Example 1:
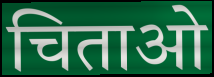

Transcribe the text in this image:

चिताओ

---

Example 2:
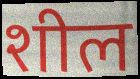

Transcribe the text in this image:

शील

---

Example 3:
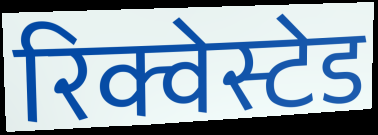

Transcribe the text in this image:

रिक्वेस्टेड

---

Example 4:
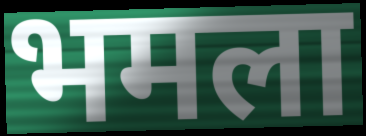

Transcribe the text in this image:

भमला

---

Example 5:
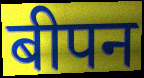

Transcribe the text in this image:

बीपन